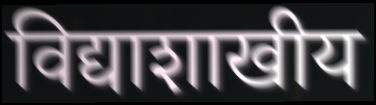
विद्याशाखीय